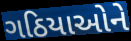
ગઠિયાઓને